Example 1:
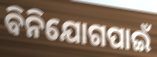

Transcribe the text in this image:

ବିନିଯୋଗପାଇଁ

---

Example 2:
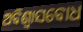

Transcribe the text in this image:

ଅବିଶ୍ୱାସବୋଧ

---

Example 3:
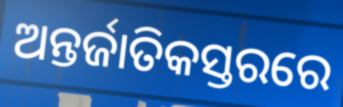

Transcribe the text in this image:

ଅନ୍ତର୍ଜାତିକସ୍ତରରେ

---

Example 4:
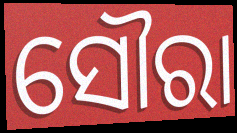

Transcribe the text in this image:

ସୌରା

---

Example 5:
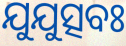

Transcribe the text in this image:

ଯୁଯୁତ୍ସବଃ